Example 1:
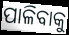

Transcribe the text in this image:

ପାଳିବାକୁ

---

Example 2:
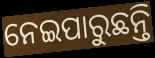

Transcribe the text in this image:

ନେଇପାରୁଛନ୍ତି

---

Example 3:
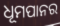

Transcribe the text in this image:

ଧୂମପାନର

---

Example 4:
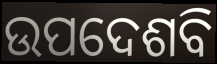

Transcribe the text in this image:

ଉପଦେଶବି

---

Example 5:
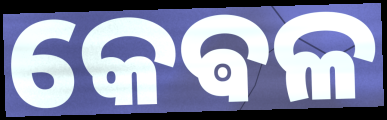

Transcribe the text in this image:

କେଵଳ